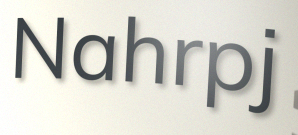
Nahrpj